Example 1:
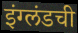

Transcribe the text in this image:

इंग्लंडची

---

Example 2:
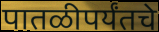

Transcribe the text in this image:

पातळीपर्यंतचे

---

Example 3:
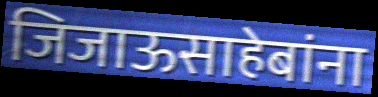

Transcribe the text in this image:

जिजाऊसाहेबांना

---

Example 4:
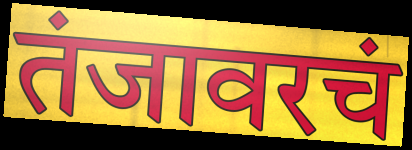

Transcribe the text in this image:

तंजावरचं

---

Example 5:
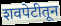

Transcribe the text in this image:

शवपेटीतून